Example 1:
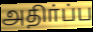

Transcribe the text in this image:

அதிர்ப்ப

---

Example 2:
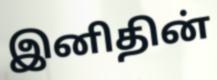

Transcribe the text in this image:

இனிதின்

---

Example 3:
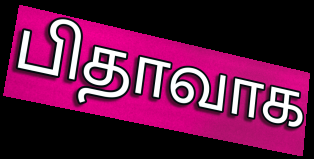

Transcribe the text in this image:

பிதாவாக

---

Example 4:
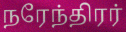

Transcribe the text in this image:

நரேந்திரர்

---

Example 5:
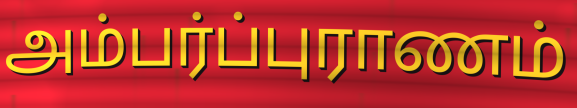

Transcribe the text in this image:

அம்பர்ப்புராணம்